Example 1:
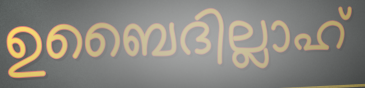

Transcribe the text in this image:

ഉബൈദില്ലാഹ്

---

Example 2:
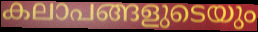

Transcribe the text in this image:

കലാപങ്ങളുടെയും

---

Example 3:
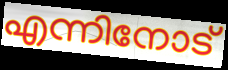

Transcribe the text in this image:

എന്നിനോട്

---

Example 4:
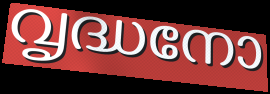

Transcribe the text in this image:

വൃദ്ധനോ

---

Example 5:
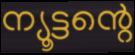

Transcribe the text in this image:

ന്യൂട്ടന്റെ